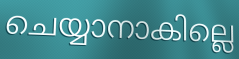
ചെയ്യാനാകില്ലെ